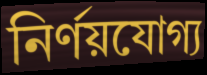
নির্ণয়যোগ্য